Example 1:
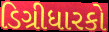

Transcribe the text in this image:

ડિગ્રીધારકો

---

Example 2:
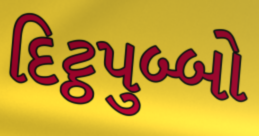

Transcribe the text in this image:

દિટ્ઠપુબ્બો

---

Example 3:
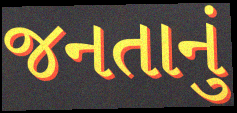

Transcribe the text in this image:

જનતાનું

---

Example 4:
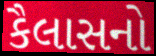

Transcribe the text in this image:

કૈલાસનો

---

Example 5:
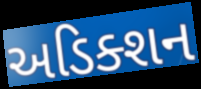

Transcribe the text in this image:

અડિક્શન